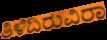
ತಿಳಿದಿರುವಿರಾ